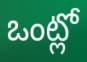
ఒంట్లో